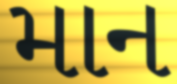
માન